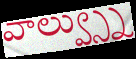
వాల్వ్స్ను